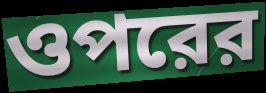
ওপরের